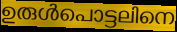
ഉരുൾപൊട്ടലിനെ